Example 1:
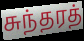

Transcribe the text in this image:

சுந்தரத்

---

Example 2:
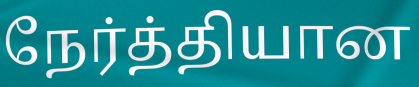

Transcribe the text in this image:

நேர்த்தியான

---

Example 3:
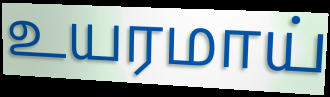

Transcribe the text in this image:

உயரமாய்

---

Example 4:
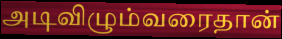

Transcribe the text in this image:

அடிவிழும்வரைதான்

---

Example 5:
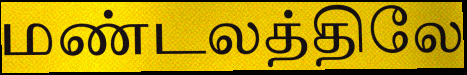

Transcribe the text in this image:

மண்டலத்திலே